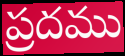
ప్రదము